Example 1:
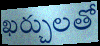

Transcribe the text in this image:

ఖర్చులతో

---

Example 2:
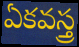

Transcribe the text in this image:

ఏకవస్త్ర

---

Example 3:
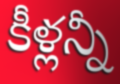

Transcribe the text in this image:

కీళ్లన్నీ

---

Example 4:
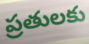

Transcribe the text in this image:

ప్రతులకు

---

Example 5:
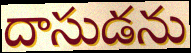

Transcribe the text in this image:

దాసుడను